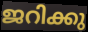
ജറിക്കു